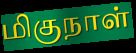
மிகுநாள்